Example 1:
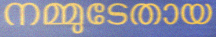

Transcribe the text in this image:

നമ്മുടേതായ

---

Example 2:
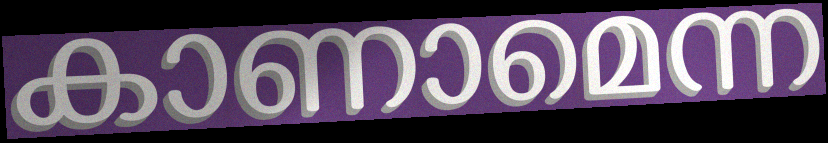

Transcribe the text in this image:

കാണാമെന്ന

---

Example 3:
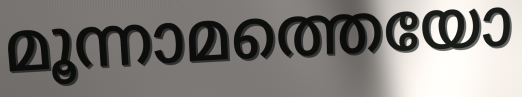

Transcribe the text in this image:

മൂന്നാമത്തെയോ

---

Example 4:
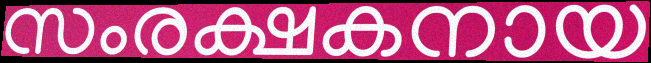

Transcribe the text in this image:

സംരക്ഷകനായ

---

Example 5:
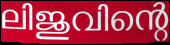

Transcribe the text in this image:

ലിജുവിന്റെ